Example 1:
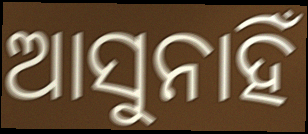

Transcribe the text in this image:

ଆସୁନାହିଁ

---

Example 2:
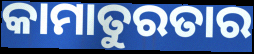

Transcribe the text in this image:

କାମାତୁରତାର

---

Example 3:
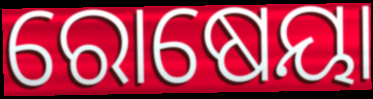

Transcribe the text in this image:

ରୋଷେୟା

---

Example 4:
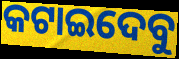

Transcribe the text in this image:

କଟାଇଦେବୁ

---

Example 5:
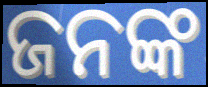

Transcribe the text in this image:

ଜନଙ୍କ